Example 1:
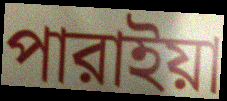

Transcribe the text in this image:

পারাইয়া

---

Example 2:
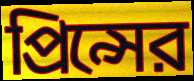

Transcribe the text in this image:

প্রিন্সের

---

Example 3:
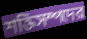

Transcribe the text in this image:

শক্তিসম্পদের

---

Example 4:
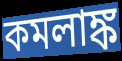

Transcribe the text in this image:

কমলাঙ্ক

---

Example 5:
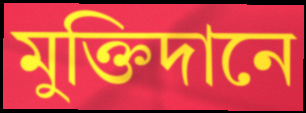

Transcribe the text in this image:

মুক্তিদানে